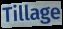
Tillage